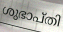
ശുഭാപ്തി